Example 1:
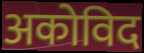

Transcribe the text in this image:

अकोविद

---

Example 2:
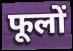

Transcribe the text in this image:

फूलों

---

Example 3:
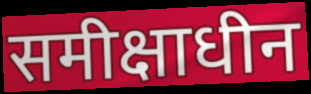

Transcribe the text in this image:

समीक्षाधीन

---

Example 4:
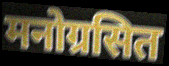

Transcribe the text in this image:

मनोग्रसित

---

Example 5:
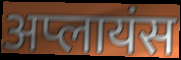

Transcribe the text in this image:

अप्‍लायंस